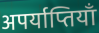
अपर्याप्तियाँ